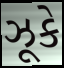
ઝૂકે